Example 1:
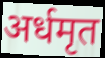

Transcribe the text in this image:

अर्धमृत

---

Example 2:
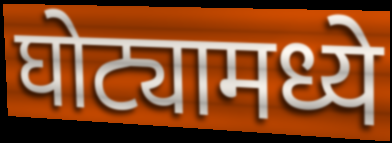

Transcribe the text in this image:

घोट्यामध्ये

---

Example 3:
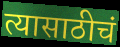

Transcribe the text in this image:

त्यासाठीचं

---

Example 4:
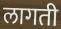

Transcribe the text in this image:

लागती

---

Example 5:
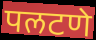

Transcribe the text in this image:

पलटणे